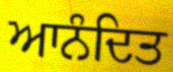
ਆਨੰਦਿਤ